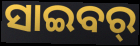
ସାଇବର୍